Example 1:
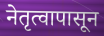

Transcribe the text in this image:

नेतृत्वापासून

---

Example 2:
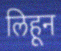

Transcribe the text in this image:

लिहून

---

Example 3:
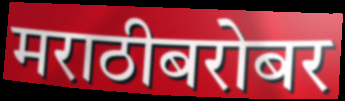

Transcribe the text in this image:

मराठीबरोबर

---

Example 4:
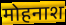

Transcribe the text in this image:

मोहनाश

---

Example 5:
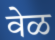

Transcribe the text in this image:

वेळ